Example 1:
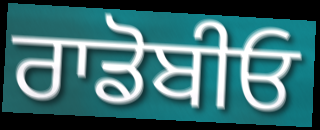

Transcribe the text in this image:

ਰਾਡੋਬੀਓ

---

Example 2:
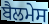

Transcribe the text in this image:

ਬੈਲਮੇਸ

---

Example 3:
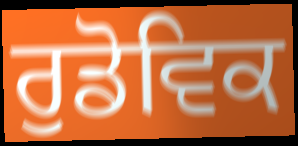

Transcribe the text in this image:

ਰੁਡੋਵਿਕ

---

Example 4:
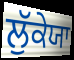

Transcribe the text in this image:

ਲੁੱਕੇਯਾ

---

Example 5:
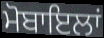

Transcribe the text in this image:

ਮੋਬਾਇਲਾਂ